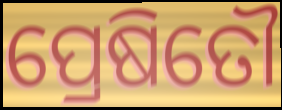
ପ୍ରେଷିତୌ